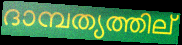
ദാമ്പത്യത്തില്